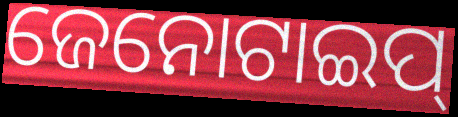
ଜେନୋଟାଇପ୍